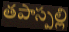
తపాస్పల్లి